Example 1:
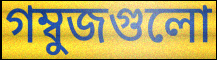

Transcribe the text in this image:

গম্বুজগুলো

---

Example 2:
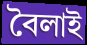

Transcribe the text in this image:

বৈলাই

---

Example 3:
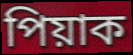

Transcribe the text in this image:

পিয়াক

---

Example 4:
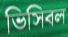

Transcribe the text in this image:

ভিসিবল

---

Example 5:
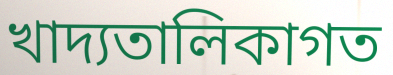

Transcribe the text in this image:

খাদ্যতালিকাগত